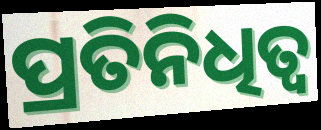
ପ୍ରତିନିଧିତ୍ୱ